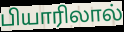
பியாரிலால்